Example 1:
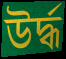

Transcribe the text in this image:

উৰ্দ্ধ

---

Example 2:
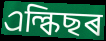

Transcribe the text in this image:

এল্কিছৰ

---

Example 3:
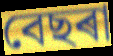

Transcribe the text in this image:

বেছৰা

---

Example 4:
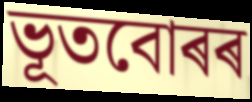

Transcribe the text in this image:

ভূতবোৰৰ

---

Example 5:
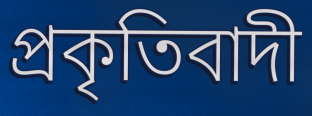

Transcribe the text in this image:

প্ৰকৃতিবাদী